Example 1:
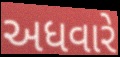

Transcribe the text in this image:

અધવારે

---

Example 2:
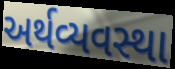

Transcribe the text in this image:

અર્થવ્યવસ્થા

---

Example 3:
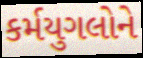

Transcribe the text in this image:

કર્મયુગલોને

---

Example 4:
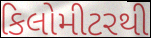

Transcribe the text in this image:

કિલોમીટરથી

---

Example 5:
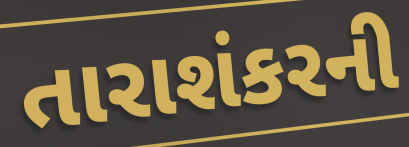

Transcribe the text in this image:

તારાશંકરની